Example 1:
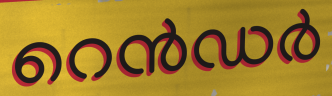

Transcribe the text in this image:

റെൻഡർ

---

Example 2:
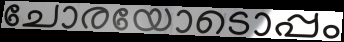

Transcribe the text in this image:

ചോരയോടൊപ്പം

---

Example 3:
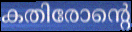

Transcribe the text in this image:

കതിരോന്റെ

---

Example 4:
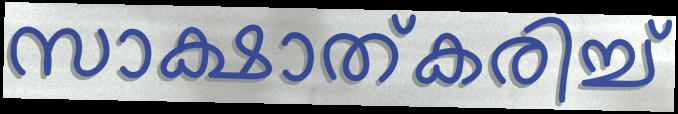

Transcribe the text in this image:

സാക്ഷാത്കരിച്ച്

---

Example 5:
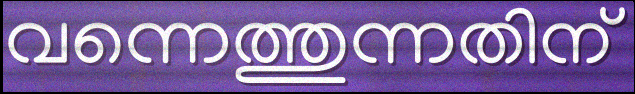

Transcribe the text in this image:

വന്നെത്തുന്നതിന്